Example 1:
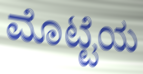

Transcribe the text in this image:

ಮೊಟ್ಟೆಯ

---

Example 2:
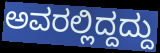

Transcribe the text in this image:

ಅವರಲ್ಲಿದ್ದದ್ದು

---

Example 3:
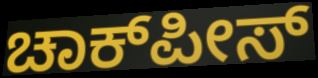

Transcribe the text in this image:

ಚಾಕ್‌ಪೀಸ್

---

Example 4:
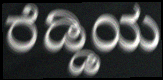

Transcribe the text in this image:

ರೆಡ್ಡಿಯ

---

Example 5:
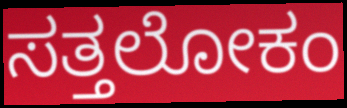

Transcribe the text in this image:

ಸತ್ತಲೋಕಂ